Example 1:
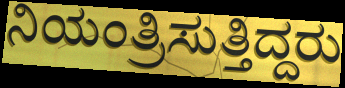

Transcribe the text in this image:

ನಿಯಂತ್ರಿಸುತ್ತಿದ್ದರು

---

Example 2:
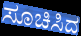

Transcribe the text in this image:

ಸೂಚಿಸಿದ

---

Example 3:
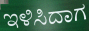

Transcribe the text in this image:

ಇಳಿಸಿದಾಗ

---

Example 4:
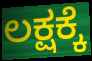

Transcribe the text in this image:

ಲಕ್ಷಕ್ಕೆ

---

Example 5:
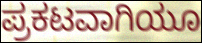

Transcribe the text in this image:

ಪ್ರಕಟವಾಗಿಯೂ